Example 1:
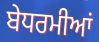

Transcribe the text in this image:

ਬੇਧਰਮੀਆਂ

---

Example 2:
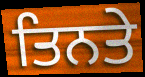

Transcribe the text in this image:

ਤਿਨਤੇ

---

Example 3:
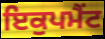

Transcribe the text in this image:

ਇਕੁਪਮੈਂਟ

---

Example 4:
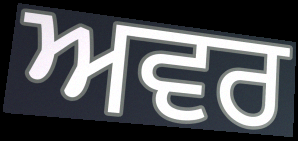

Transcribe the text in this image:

ਅਵਰ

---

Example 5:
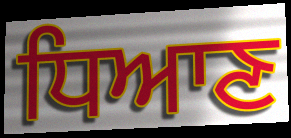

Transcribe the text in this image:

ਧਿਆਣ